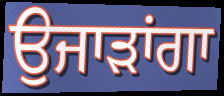
ਉਜਾੜਾਂਗਾ